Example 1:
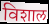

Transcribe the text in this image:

विशाल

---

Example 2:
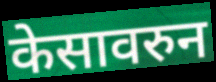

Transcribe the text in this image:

केसावरुन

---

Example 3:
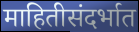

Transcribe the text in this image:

माहितीसंदर्भात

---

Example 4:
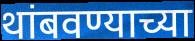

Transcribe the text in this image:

थांबवण्याच्या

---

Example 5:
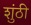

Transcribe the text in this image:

शुंठी